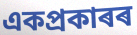
একপ্ৰকাৰৰ